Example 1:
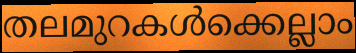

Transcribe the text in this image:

തലമുറകൾക്കെല്ലാം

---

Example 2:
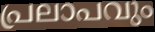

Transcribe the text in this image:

പ്രലാപവും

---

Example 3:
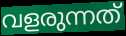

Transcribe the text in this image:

വളരുന്നത്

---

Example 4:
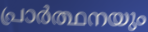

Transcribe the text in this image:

പ്രാർത്ഥനയും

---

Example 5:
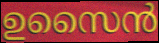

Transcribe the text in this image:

ഉസൈൻ